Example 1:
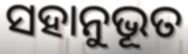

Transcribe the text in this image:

ସହାନୁଭୂତ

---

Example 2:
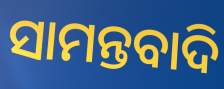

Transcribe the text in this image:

ସାମନ୍ତବାଦି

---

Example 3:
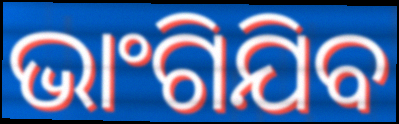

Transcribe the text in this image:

ଭାଂଗିଯିବ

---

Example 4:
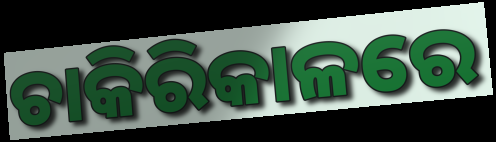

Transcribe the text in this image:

ଚାକିରିକାଳରେ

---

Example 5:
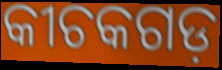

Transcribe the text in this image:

କୀଚକଗଡ଼